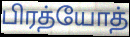
பிரத்யோத்